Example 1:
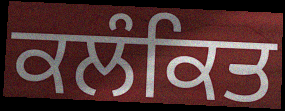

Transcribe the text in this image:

ਕਲੰਕਿਤ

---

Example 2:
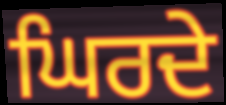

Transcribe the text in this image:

ਘਿਰਦੇ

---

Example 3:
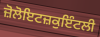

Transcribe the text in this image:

ਜ਼ੋਲੋਇਟਜ਼ਕੁਇੰਟਲੀ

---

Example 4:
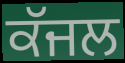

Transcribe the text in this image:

ਕੱਜਲ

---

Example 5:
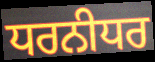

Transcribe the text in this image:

ਧਰਨੀਧਰ